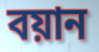
বয়ান